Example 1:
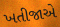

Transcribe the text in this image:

ખતીજાએ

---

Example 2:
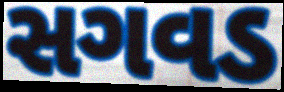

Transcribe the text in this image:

સગવડ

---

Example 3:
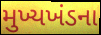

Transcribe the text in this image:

મુખ્યખંડના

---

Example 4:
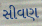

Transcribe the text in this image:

સીવણ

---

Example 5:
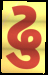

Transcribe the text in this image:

ઢુ